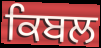
ਕਿਬਲ